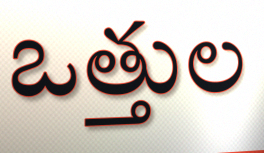
ఒత్తుల